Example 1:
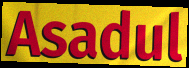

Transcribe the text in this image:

Asadul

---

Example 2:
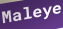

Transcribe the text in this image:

Maleye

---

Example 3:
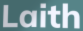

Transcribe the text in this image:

Laith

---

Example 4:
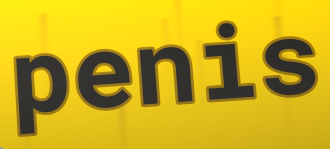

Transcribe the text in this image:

penis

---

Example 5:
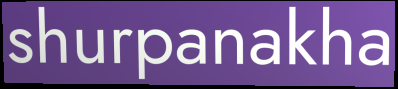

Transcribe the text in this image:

shurpanakha